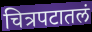
चित्रपटातलं